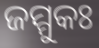
ଜମ୍ମୁକଃ